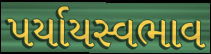
પર્યાયસ્વભાવ